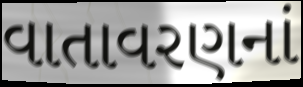
વાતાવરણનાં